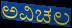
ಅವಿಚಲ